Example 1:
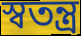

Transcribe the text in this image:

স্ৱতন্ত্ৰ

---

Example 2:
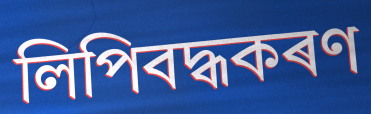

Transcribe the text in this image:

লিপিবদ্ধকৰণ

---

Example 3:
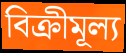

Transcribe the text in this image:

বিক্ৰীমূল্য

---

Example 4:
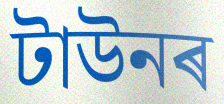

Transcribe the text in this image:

টাউনৰ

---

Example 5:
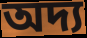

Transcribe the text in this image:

অদ্য